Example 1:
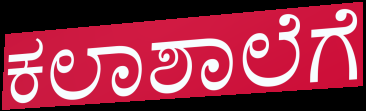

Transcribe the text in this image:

ಕಲಾಶಾಲೆಗೆ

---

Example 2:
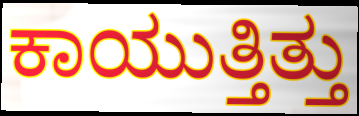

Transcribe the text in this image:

ಕಾಯುತ್ತಿತ್ತು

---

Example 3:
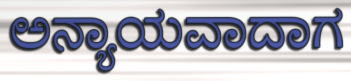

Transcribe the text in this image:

ಅನ್ಯಾಯವಾದಾಗ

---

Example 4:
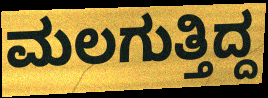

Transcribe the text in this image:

ಮಲಗುತ್ತಿದ್ದ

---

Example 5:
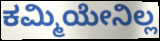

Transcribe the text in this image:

ಕಮ್ಮಿಯೇನಿಲ್ಲ